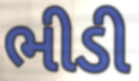
ભીડી